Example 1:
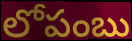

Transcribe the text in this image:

లోపంబు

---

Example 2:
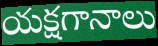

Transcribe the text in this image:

యక్షగానాలు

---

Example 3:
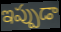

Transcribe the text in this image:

ఇప్పుడా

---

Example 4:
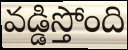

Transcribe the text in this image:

వడ్డిస్తోంది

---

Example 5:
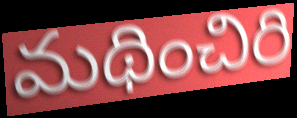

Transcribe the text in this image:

మథించిరి